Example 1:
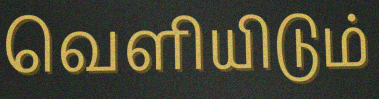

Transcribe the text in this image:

வெளியிடும்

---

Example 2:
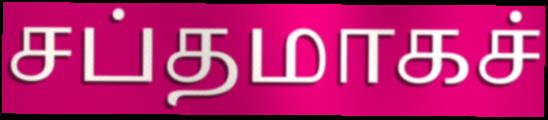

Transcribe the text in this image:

சப்தமாகச்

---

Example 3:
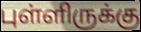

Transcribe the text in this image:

புள்ளிருக்கு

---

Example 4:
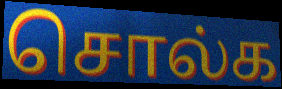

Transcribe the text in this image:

சொல்க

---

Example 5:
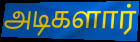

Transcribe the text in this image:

அடிகளார்